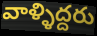
వాళ్ళిద్దరు